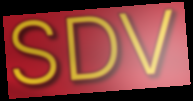
SDV